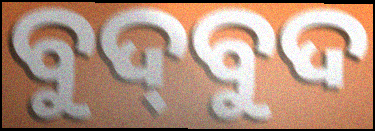
ବୁଦ୍‌ବୁଦ